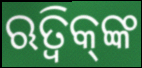
ଋତ୍ୱିକ୍‌ଙ୍କ